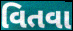
વિતવા